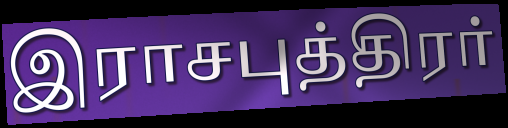
இராசபுத்திரர்